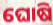
ଘୋଷି